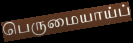
பெருமையாய்ப்